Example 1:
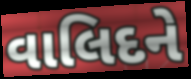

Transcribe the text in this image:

વાલિદને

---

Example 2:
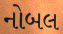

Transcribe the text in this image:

નોબલ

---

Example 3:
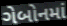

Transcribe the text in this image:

ગેબોનમાં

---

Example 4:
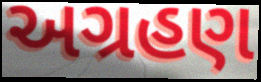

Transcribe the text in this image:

અગ્રહણ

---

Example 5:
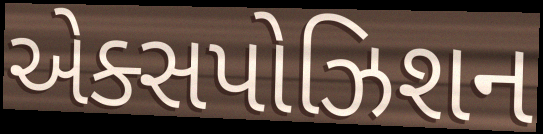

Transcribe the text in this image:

એક્સપોઝિશન